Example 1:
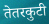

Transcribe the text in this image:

तेतरकुटी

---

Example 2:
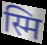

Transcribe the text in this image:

स्मि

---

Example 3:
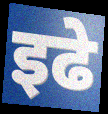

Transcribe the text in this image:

इढे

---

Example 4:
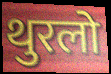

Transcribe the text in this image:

थुरलो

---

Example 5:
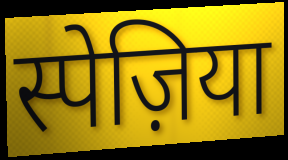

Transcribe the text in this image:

स्पेज़िया